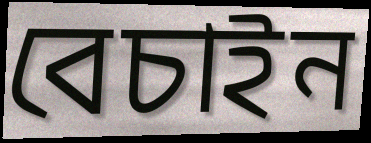
বেচাইন